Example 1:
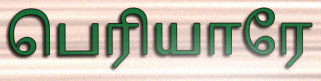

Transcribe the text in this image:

பெரியாரே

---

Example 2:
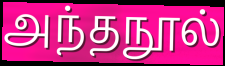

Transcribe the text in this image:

அந்தநூல்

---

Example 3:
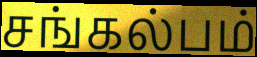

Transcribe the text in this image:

சங்கல்பம்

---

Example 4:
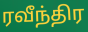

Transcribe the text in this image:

ரவீந்திர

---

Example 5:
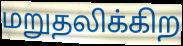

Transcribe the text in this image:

மறுதலிக்கிற